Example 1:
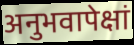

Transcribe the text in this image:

अनुभवापेक्षां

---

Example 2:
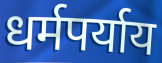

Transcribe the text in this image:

धर्मपर्याय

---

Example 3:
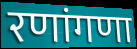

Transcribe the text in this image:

रणांगणा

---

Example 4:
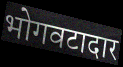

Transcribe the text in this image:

भोगवटादार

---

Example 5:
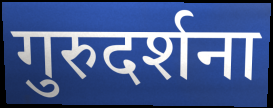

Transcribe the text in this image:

गुरुदर्शना